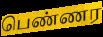
பெண்ணர